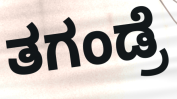
ತಗಂಡ್ರೆ